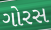
ગોરસ